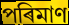
পৰিমাণ